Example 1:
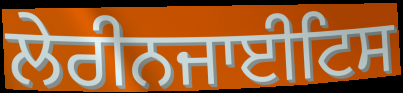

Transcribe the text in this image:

ਲੇਰੀਨਜਾਈਟਿਸ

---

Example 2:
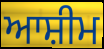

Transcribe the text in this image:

ਆਸ਼ੀਮ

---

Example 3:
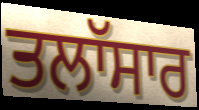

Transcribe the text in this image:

ਤਲਾੱਸਾਰ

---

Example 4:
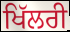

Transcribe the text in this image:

ਖਿੱਲਰੀ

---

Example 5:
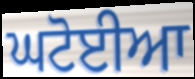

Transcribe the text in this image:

ਘਟੋਈਆ